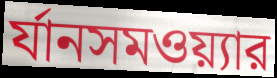
র্যানসমওয়্যার